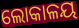
ଲୋକାଳୟ